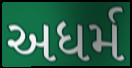
અધર્મ